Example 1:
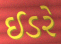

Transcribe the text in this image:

ઈડરે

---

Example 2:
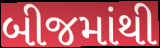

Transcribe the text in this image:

બીજમાંથી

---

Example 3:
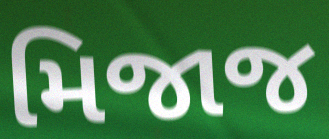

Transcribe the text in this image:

મિજાજ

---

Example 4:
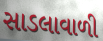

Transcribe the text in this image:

સાડલાવાળી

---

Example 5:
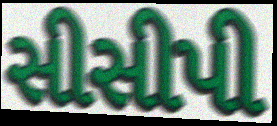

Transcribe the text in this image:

સીસીપી